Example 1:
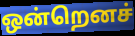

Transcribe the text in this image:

ஒன்றெனச்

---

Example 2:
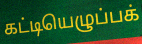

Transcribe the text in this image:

கட்டியெழுப்பக்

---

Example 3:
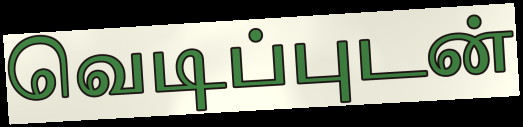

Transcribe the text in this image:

வெடிப்புடன்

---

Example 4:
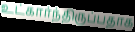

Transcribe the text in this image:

உட்கார்ந்திருப்பதாக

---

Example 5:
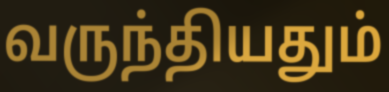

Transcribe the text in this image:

வருந்தியதும்